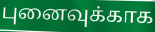
புனைவுக்காக